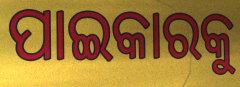
ପାଇକାରକୁ